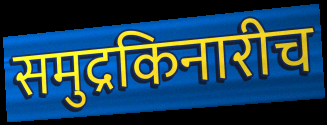
समुद्रकिनारीच